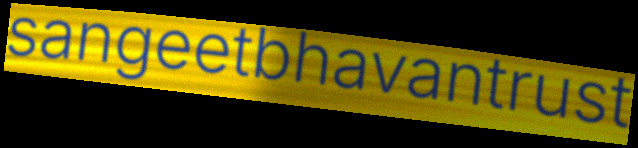
sangeetbhavantrust